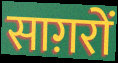
साग़रों